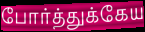
போர்த்துக்கேய